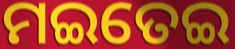
ମଇତେଇ